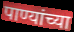
पाण्यांच्या